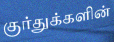
குர்துக்களின்